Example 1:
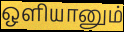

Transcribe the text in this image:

ஒளியானும்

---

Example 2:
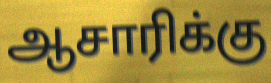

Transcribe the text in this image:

ஆசாரிக்கு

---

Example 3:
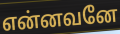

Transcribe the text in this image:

என்னவனே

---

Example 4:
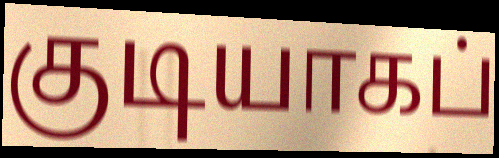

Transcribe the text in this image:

குடியாகப்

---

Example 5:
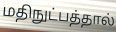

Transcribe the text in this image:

மதிநுட்பத்தால்